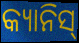
କ୍ୟାନିସ୍